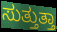
ಸುತ್ತುತ್ತಾ